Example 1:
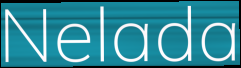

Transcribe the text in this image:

Nelada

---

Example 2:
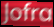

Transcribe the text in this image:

Jofra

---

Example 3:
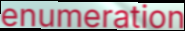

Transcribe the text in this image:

enumeration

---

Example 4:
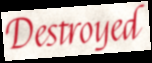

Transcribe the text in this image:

Destroyed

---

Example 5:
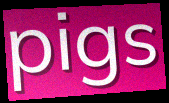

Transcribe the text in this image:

pigs